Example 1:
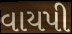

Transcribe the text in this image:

વાયપી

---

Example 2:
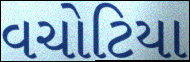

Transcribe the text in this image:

વચોટિયા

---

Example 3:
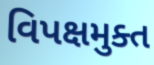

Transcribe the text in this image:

વિપક્ષમુક્ત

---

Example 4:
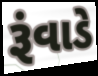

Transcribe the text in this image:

રૂંવાડે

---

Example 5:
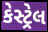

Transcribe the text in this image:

કેસ્ટ્રેલ